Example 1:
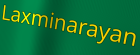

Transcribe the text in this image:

Laxminarayan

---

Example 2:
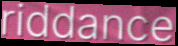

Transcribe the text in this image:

riddance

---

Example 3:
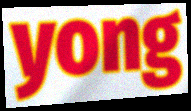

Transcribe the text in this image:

yong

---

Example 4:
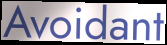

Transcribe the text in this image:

Avoidant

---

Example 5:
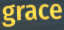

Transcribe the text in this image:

grace